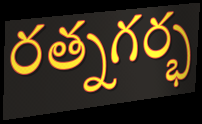
రత్నగర్భ